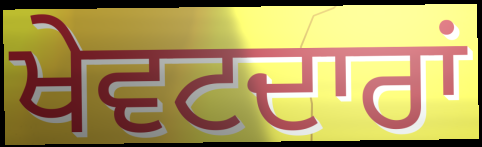
ਖੇਵਟਦਾਰਾਂ